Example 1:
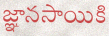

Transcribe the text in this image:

జ్ఞానసాయికి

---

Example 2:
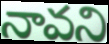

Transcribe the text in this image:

నావని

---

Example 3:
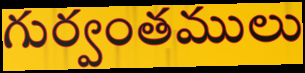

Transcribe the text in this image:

గుర్వంతములు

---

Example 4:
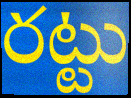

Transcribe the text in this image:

రట్టు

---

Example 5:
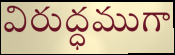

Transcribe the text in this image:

విరుద్ధముగా